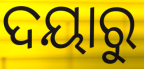
ଦୟାରୁ